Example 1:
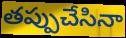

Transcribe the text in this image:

తప్పుచేసినా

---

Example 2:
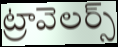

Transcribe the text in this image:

ట్రావెలర్స్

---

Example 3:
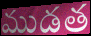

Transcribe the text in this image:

ముడత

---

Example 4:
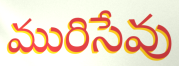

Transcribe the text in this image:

మురిసేవు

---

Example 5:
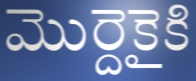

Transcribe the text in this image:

మొర్దెకైకి